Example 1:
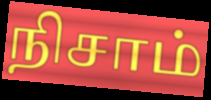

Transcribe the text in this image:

நிசாம்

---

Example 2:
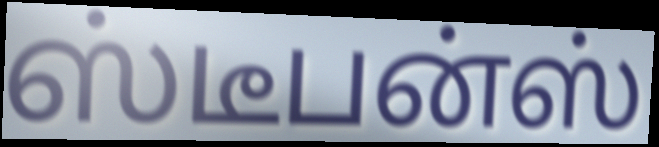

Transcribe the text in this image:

ஸ்டீபன்ஸ்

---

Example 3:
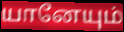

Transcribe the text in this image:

யானேயும்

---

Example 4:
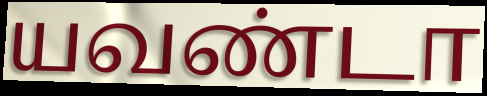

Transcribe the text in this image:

யவண்டா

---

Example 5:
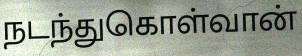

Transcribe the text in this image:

நடந்துகொள்வான்